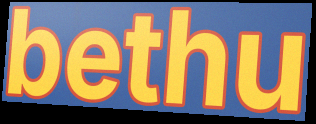
bethu